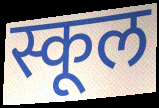
स्कूल